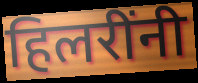
हिलरींनी